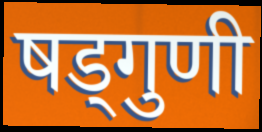
षड्गुणी